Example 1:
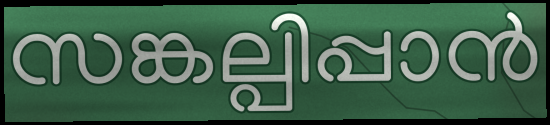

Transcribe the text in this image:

സങ്കല്പിപ്പാൻ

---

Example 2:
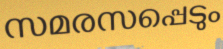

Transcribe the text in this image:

സമരസപ്പെടും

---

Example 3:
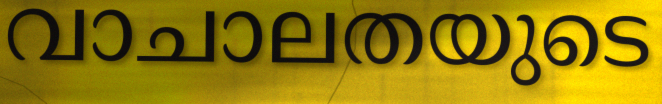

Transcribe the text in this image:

വാചാലതയുടെ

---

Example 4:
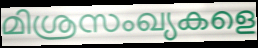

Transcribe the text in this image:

മിശ്രസംഖ്യകളെ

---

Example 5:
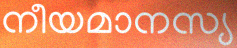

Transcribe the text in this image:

നീയമാനസ്യ